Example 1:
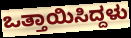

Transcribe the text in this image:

ಒತ್ತಾಯಿಸಿದ್ದಳು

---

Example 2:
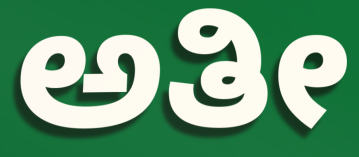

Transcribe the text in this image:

ಅತೀ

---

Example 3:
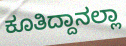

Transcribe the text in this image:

ಕೂತಿದ್ದಾನಲ್ಲಾ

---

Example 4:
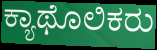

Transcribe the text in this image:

ಕ್ಯಾಥೊಲಿಕರು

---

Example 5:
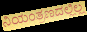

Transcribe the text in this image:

ನಿಯಂತ್ರಣದಲ್ಲಿಲ್ಲ